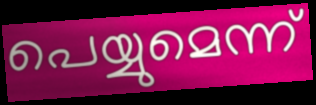
പെയ്യുമെന്ന്